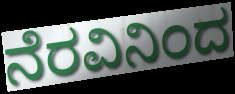
ನೆರವಿನಿಂದ